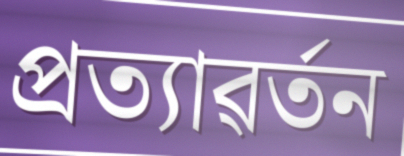
প্ৰত্যাৱৰ্তন